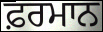
ਫ਼ਰਮਾਨ